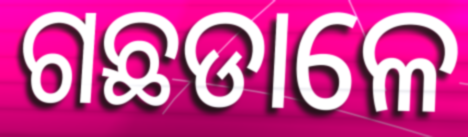
ଗଛଡାଳେ